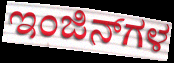
ಇಂಜಿನ್‌ಗಳ